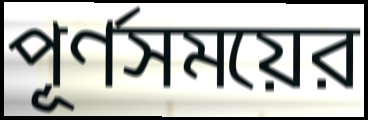
পূর্ণসময়ের